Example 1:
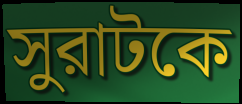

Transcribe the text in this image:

সুরাটকে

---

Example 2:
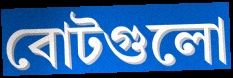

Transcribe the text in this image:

বোটগুলো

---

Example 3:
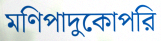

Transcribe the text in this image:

মণিপাদুকোপরি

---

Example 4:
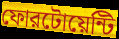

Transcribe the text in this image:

ফোরটোয়েন্টি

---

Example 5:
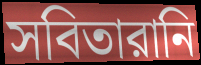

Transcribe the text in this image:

সবিতারানি